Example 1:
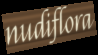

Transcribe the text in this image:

nudiflora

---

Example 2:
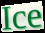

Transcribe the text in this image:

Ice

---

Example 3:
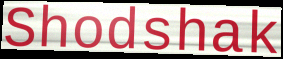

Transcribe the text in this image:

Shodshak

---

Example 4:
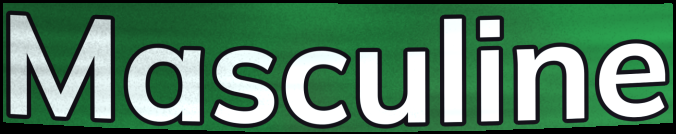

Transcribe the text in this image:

Masculine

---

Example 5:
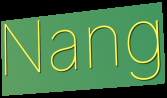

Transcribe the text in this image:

Nang